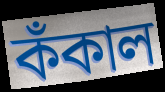
কঁকাল